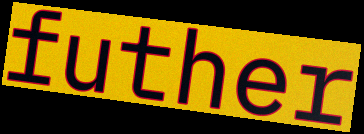
futher